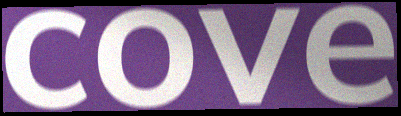
cove